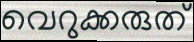
വെറുക്കരുത്